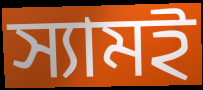
স্যামই